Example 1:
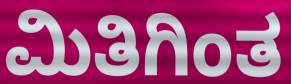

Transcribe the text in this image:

ಮಿತಿಗಿಂತ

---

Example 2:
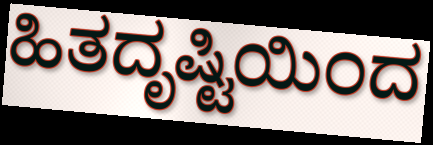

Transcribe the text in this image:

ಹಿತದೃಷ್ಟಿಯಿಂದ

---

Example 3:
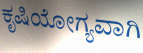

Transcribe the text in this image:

ಕೃಷಿಯೋಗ್ಯವಾಗಿ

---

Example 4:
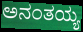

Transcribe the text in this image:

ಅನಂತಯ್ಯ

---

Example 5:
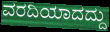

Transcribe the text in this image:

ವರದಿಯಾದದ್ದು